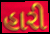
હારી